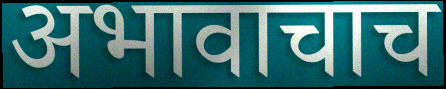
अभावाचाच